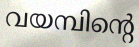
വയമ്പിന്റെ